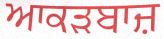
ਆਕੜਬਾਜ਼